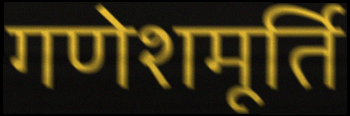
गणेशमूर्ति